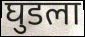
घुडला